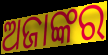
ଅଜାଙ୍କର